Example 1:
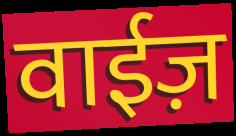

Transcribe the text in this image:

वाईज़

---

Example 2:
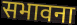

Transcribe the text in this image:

सभावना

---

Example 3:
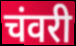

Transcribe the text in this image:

चंवरी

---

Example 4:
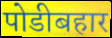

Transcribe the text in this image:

पोडीबहार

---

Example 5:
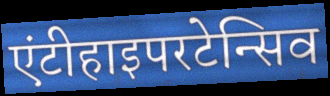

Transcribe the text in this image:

एंटीहाइपरटेन्सिव